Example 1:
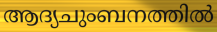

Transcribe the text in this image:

ആദ്യചുംബനത്തിൽ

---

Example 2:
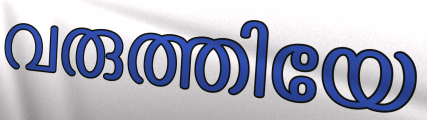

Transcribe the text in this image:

വരുത്തിയേ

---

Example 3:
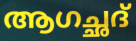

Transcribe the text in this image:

ആഗച്ഛദ്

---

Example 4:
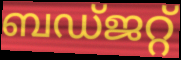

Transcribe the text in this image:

ബഡ്ജറ്റ്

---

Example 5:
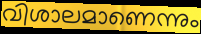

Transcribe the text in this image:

വിശാലമാണെന്നും